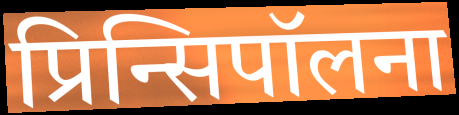
प्रिन्सिपॉलना